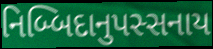
નિબ્બિદાનુપસ્સનાય